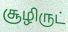
சூழிருட்